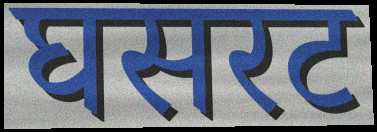
घसरट